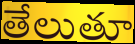
తేలుతూ